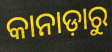
କାନାଡ଼ାରୁ